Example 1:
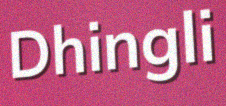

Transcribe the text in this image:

Dhingli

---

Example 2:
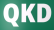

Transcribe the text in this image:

QKD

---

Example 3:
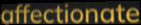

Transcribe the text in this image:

affectionate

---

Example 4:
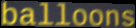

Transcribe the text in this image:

balloons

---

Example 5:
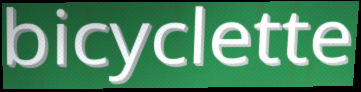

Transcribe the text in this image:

bicyclette